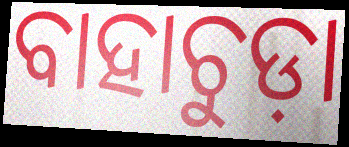
ବାହାଚୁଡ଼ା